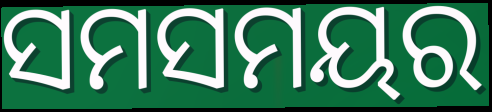
ସମସମୟର